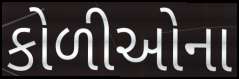
કોળીઓના